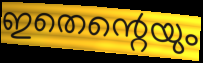
ഇതെന്റെയും